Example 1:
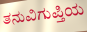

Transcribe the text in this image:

ತನುವಿಗುಪ್ತಿಯ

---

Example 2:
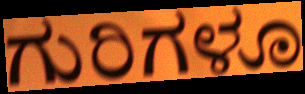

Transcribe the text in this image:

ಗುರಿಗಳೂ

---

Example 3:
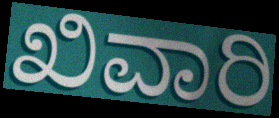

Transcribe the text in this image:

ಖಿವಾರಿ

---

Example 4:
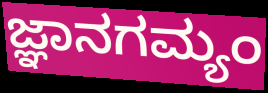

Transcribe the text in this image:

ಜ್ಞಾನಗಮ್ಯಂ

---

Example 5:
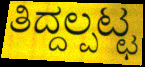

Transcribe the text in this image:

ತಿದ್ದಲ್ಪಟ್ಟ